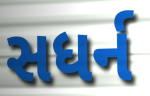
સધર્ન